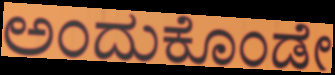
ಅಂದುಕೊಂಡೇ